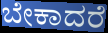
ಬೇಕಾದರೆ